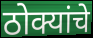
ठोक्यांचे